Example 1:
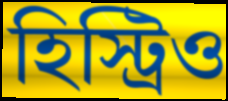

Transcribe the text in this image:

হিস্ট্রিও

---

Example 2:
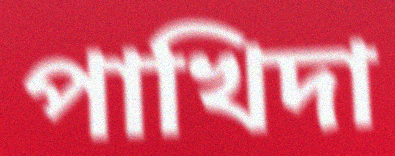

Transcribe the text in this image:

পাখিদা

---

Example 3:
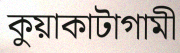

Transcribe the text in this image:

কুয়াকাটাগামী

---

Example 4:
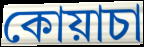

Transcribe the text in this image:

কোয়াচা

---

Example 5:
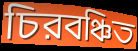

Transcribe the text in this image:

চিরবঞ্চিত